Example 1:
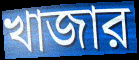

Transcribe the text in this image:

খাজার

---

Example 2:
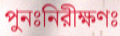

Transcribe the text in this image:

পুনঃনিরীক্ষণঃ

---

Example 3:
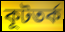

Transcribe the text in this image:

কূটতর্ক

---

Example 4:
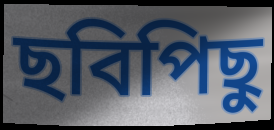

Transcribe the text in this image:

ছবিপিছু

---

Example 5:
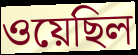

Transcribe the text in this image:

ওয়েছিল